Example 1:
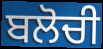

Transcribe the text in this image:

ਬਲੋਚੀ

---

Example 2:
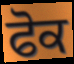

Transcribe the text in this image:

ਫੋਕ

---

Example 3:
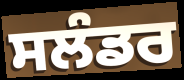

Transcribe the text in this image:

ਸਲੰਡਰ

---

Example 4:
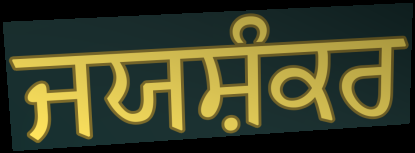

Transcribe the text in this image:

ਜਯਸ਼ੰਕਰ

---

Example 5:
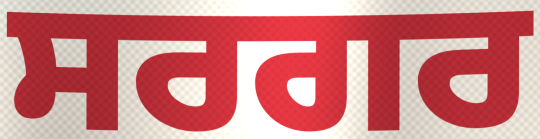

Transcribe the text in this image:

ਸਰਗਰ